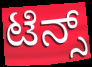
ಟೆನ್ಸ್